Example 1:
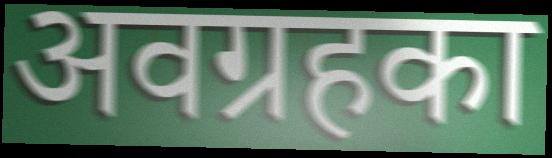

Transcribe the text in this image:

अवग्रहका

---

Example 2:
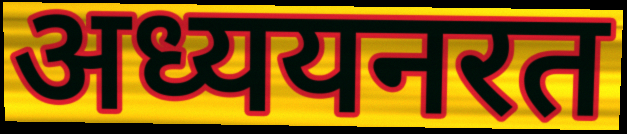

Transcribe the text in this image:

अध्ययनरत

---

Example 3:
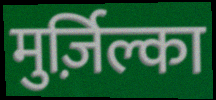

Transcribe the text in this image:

मुर्ज़िल्का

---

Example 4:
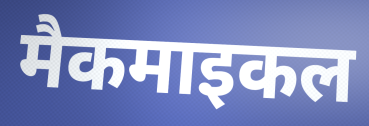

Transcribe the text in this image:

मैकमाइकल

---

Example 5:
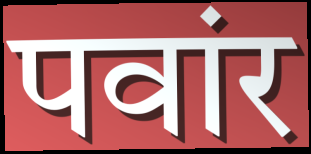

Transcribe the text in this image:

पवांर